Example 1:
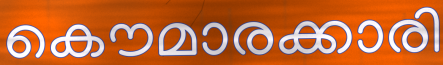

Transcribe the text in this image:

കൌമാരക്കാരി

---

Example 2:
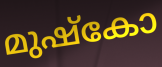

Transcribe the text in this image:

മുഷ്കോ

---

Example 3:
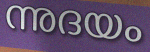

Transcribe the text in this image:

ന്നുദയം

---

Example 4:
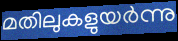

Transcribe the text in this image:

മതിലുകളുയർന്നു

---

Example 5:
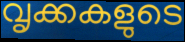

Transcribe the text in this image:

വൃക്കകളുടെ